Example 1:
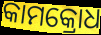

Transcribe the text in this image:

କାମକ୍ରୋଧ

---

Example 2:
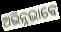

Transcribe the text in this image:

ଅଭିନ୍ନଭାବେ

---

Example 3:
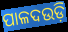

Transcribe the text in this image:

ପାଳଦଉଡ଼ି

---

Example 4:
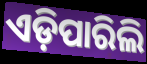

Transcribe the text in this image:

ଏଡ଼ିପାରିଲି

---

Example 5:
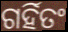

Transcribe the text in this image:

ଗର୍ହିତଂ